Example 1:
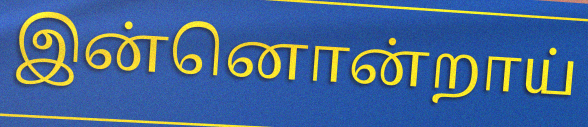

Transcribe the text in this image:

இன்னொன்றாய்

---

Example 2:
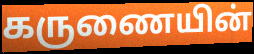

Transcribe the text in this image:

கருணையின்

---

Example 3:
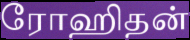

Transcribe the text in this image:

ரோஹிதன்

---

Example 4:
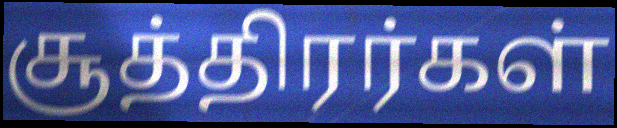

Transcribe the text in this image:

சூத்திரர்கள்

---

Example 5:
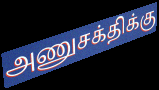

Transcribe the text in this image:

அணுசக்திக்கு